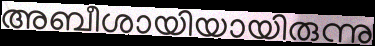
അബീശായിയായിരുന്നു